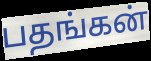
பதங்கன்